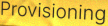
Provisioning